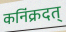
कनि॑क्रदत्